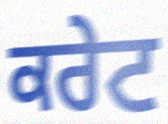
ਕਰੇਟ